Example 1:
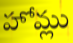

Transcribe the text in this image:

హోమ్లు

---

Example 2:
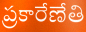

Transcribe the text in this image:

ప్రకారేణేతి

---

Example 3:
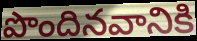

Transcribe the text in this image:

పొందినవానికి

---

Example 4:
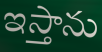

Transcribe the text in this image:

ఇస్తాను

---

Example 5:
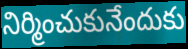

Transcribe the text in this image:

నిర్మించుకునేందుకు